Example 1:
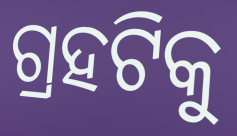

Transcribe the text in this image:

ଗ୍ରହଟିକୁ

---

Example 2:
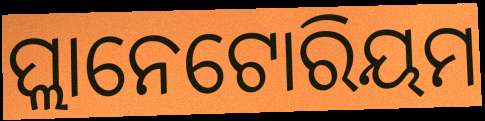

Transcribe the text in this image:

ପ୍ଲାନେଟୋରିୟମ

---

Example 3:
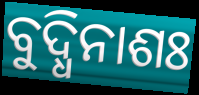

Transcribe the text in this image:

ବୁଦ୍ଧିନାଶଃ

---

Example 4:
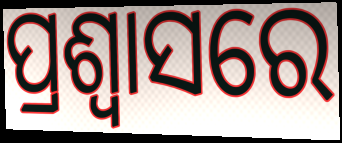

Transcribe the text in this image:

ପ୍ରଶ୍ଵାସରେ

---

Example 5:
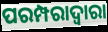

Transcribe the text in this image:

ପରମ୍ପରାଦ୍ବାରା